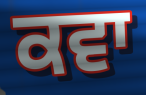
ਕਵਾ